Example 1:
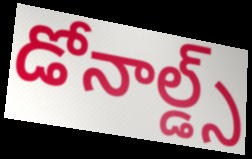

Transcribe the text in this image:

డోనాల్డ్స్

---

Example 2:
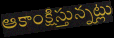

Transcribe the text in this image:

ఆకాంక్షిస్తున్నట్లు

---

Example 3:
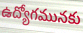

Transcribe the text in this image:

ఉద్యోగమునకు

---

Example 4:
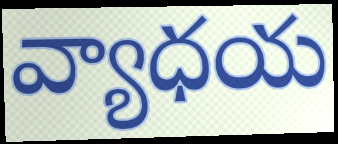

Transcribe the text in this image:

వ్యాధయ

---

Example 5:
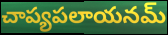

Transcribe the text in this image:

చాప్యపలాయనమ్